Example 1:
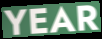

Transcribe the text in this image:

YEAR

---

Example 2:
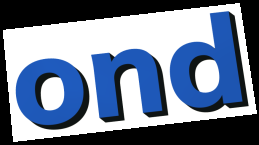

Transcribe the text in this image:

ond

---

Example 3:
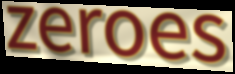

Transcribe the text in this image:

zeroes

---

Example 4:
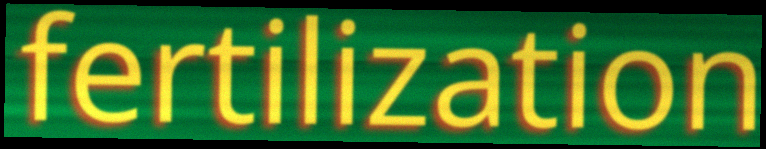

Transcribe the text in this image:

fertilization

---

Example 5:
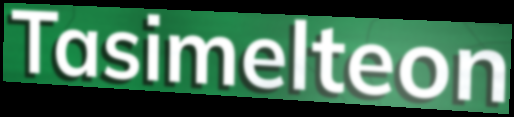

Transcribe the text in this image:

Tasimelteon